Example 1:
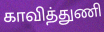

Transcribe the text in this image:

காவித்துணி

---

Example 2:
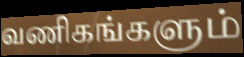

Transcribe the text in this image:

வணிகங்களும்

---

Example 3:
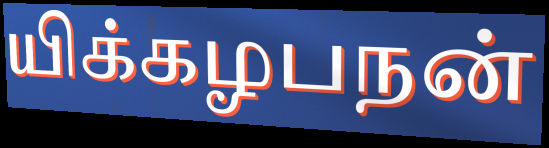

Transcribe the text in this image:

யிக்கழபநன்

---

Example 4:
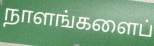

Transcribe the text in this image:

நாளங்களைப்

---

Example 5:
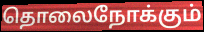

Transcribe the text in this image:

தொலைநோக்கும்